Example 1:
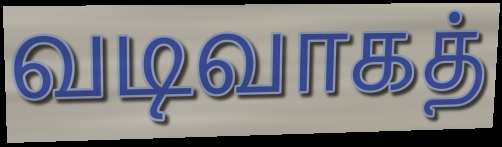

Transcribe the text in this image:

வடிவாகத்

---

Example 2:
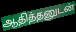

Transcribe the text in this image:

ஆதித்தனுடன்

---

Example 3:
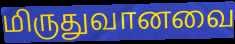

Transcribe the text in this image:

மிருதுவானவை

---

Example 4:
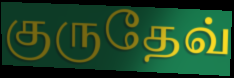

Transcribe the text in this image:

குருதேவ்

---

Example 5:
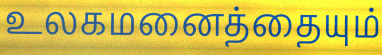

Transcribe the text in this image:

உலகமனைத்தையும்